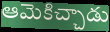
ఆమెకిచ్చాడు